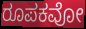
ರೂಪಕವೋ